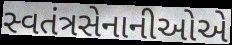
સ્વતંત્રસેનાનીઓએ